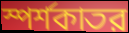
স্পর্শকাতর